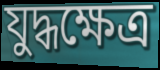
যুদ্ধক্ষেত্র